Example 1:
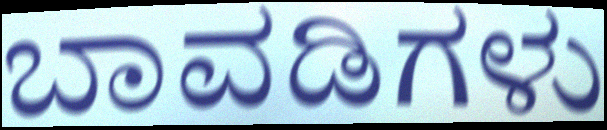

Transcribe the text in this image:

ಬಾವಡಿಗಳು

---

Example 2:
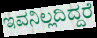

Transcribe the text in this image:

ಇವನಿಲ್ಲದಿದ್ದರೆ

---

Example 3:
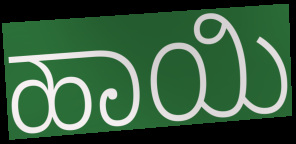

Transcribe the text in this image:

ಹಾಯಿ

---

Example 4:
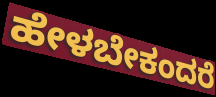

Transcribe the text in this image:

ಹೇಳಬೇಕಂದರೆ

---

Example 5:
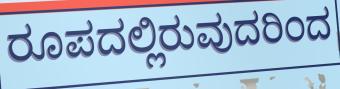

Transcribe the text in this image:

ರೂಪದಲ್ಲಿರುವುದರಿಂದ